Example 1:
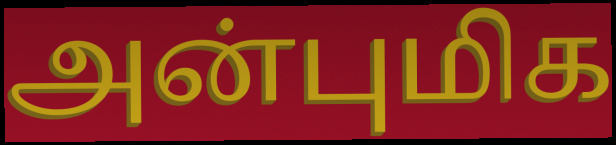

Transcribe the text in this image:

அன்புமிக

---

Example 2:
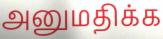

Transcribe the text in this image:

அனுமதிக்க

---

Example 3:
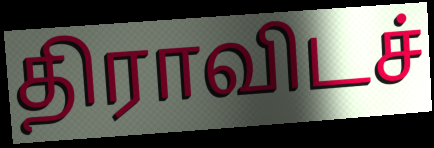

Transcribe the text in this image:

திராவிடச்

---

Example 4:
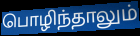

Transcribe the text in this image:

பொழிந்தாலும்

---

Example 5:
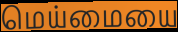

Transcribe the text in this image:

மெய்மையை